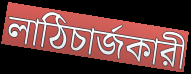
লাঠিচার্জকারী